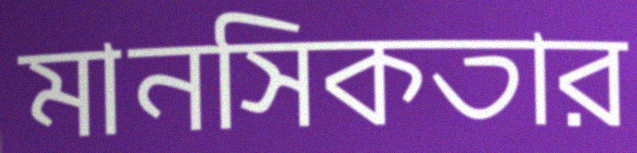
মানসিকতার